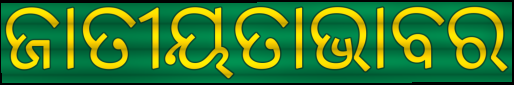
ଜାତୀୟତାଭାବର